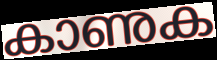
കാണുക